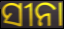
ସୀନା